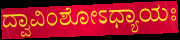
ದ್ವಾವಿಂಶೋಽಧ್ಯಾಯಃ